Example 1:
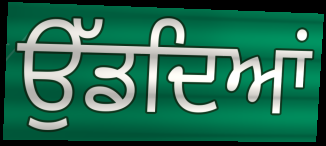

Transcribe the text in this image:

ਉੱਡਦਿਆਂ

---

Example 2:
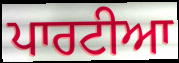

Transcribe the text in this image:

ਪਾਰਟੀਆ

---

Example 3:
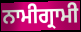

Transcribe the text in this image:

ਨਾਮੀਗ੍ਰਾਮੀ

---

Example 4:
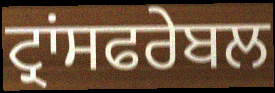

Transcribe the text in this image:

ਟ੍ਰਾਂਸਫਰੇਬਲ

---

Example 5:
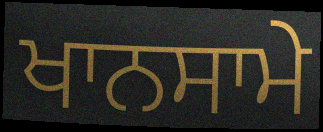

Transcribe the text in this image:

ਖਾਨਸਾਮੇ